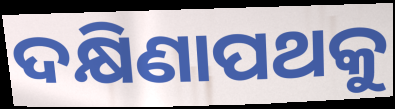
ଦକ୍ଷିଣାପଥକୁ